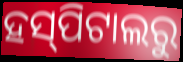
ହସ୍‍ପିଟାଲରୁ